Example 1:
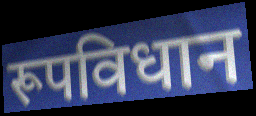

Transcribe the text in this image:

रूपविधान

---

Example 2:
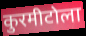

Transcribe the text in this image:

कुरमीटोला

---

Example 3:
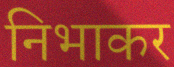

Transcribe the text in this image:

निभाकर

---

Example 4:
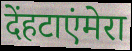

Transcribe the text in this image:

देंहटाएंमेरा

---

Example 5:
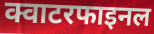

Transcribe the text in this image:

क्वाटरफाइनल